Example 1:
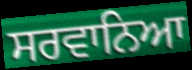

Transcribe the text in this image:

ਸਰਵਾਨਿਆ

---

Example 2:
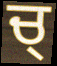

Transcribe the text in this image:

ਚ੍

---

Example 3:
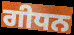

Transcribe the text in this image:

ਗੀਧਨ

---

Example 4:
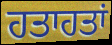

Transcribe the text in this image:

ਹਤਾਹਤਾਂ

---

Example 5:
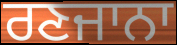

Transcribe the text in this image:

ਰਣਜਾਨਾ